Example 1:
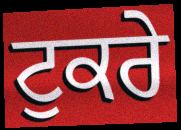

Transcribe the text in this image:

ਟੁਕਰੇ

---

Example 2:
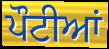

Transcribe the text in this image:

ਪੌਟੀਆਂ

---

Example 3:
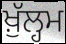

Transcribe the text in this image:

ਖ਼ੁੱਲ੍ਹਮ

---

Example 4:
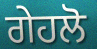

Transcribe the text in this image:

ਗੇਹਲੋ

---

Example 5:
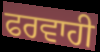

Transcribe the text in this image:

ਫਰਵਾਹੀ